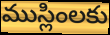
ముస్లింలకు